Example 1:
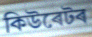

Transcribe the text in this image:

কিউৰেটৰ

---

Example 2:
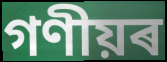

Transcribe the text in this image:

গণীয়ৰ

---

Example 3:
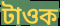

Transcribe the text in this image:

টাওক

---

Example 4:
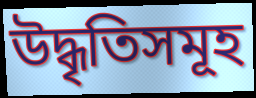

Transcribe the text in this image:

উদ্ধৃতিসমূহ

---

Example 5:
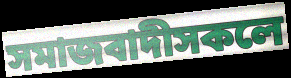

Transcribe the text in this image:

সমাজবাদীসকলে